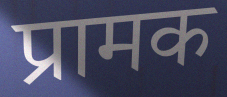
प्रामक